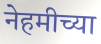
नेहमीच्या